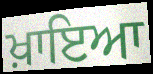
ਖ਼ਾਇਆ